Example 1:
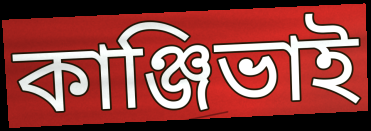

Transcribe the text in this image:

কাঞ্জিভাই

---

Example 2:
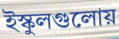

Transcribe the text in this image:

ইস্কুলগুলোয়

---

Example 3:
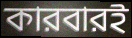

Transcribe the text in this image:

কারবারই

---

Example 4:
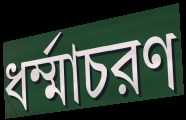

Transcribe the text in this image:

ধর্ম্মাচরণ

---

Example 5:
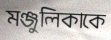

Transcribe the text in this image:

মঞ্জুলিকাকে